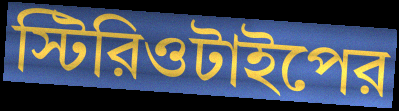
স্টিরিওটাইপের